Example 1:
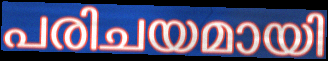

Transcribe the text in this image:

പരിചയമായി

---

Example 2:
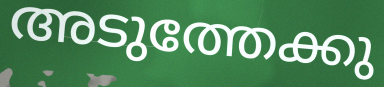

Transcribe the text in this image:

അടുത്തേക്കു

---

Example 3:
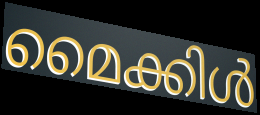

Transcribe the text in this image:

മൈക്കിൾ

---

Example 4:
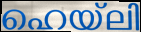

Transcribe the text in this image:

ഹെയ്‌ലി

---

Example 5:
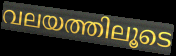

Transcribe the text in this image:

വലയത്തിലൂടെ